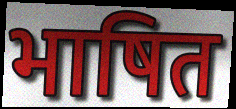
भाषित